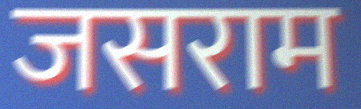
जसराम